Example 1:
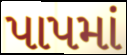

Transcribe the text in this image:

પાપમાં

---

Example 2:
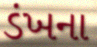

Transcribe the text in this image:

ડંખના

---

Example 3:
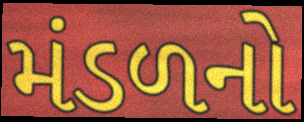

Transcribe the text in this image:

મંડળનો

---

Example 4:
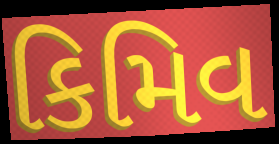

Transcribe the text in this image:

કિમિવ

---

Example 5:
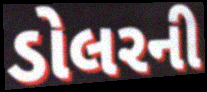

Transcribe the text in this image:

ડોલરની